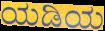
ಯಡಿಯ